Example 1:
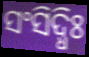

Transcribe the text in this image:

ସଂସିଦ୍ଧିଃ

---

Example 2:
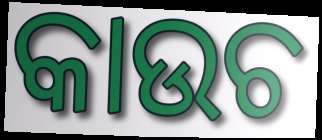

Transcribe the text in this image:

କାଉଚ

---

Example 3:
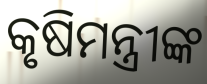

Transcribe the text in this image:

କୃଷିମନ୍ତ୍ରୀଙ୍କ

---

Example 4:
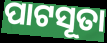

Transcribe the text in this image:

ପାଟସୂତା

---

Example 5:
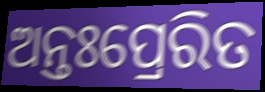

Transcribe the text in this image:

ଅନ୍ତଃପ୍ରେରିତ